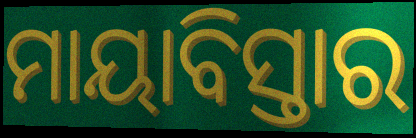
ମାୟାବିସ୍ତାର